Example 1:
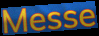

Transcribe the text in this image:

Messe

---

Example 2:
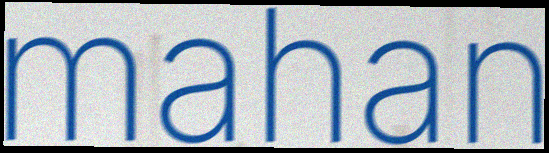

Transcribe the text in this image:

mahan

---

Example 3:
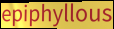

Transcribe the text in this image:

epiphyllous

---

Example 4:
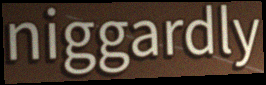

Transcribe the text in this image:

niggardly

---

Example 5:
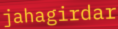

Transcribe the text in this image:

jahagirdar